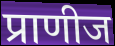
प्राणीज